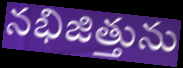
నభిజిత్తును